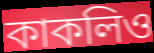
কাকলিও